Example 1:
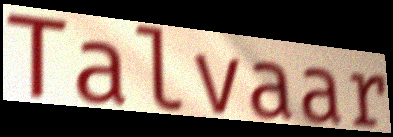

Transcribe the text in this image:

Talvaar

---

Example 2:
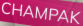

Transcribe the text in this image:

CHAMPAK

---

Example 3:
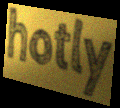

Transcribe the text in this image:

hotly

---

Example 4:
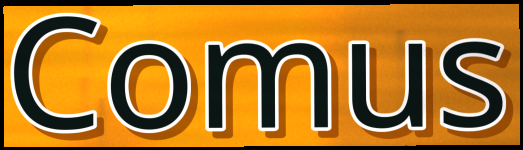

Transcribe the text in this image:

Comus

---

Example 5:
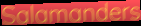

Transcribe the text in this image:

Salamanders